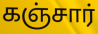
கஞ்சார்